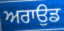
ਅਰਾਉਡ